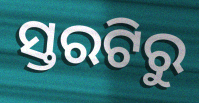
ସ୍ତରଟିରୁ